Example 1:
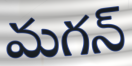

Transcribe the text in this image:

మగన్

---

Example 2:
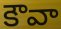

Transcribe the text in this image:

కౌవా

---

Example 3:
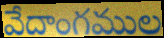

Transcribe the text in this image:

వేదాంగముల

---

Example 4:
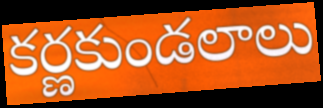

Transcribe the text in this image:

కర్ణకుండలాలు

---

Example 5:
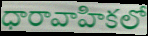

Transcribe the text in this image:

ధారావాహికలో